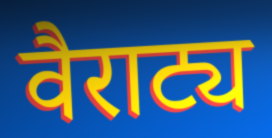
वैराट्य